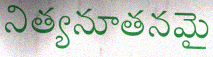
నిత్యనూతనమై